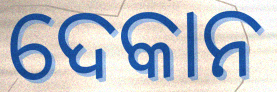
ଦେକାନ